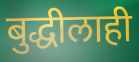
बुद्धीलाही